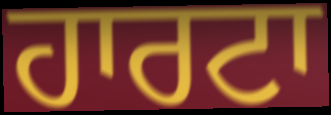
ਹਾਰਟਾ